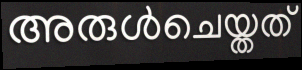
അരുൾചെയ്തത്